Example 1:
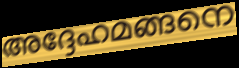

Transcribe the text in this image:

അദ്ദേഹമങ്ങനെ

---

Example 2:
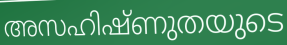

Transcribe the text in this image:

അസഹിഷ്ണുതയുടെ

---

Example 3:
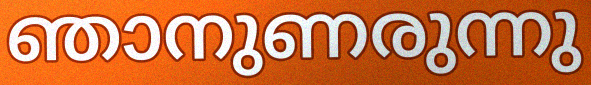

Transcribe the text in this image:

ഞാനുണരുന്നു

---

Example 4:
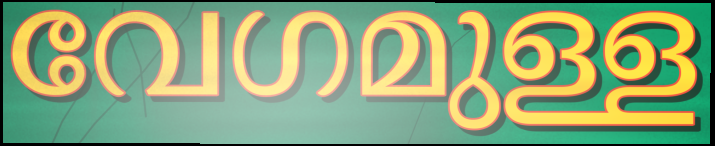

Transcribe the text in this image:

വേഗമുള്ള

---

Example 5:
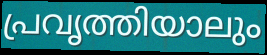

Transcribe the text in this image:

പ്രവൃത്തിയാലും